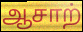
ஆசாற்